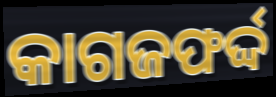
କାଗଜଫର୍ଦ୍ଦ